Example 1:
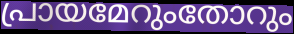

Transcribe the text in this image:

പ്രായമേറുംതോറും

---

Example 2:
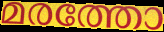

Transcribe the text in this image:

മരത്തോ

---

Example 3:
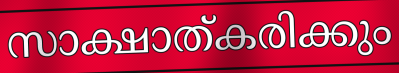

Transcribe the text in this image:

സാക്ഷാത്കരിക്കും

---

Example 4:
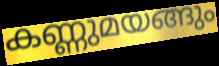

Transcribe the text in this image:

കണ്ണുമയങ്ങും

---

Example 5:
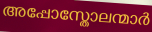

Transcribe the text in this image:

അപ്പോസ്തോലന്മാർ